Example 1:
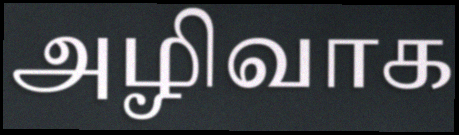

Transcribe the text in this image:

அழிவாக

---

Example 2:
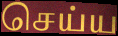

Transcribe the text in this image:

செய்ய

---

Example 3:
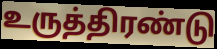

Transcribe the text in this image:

உருத்திரண்டு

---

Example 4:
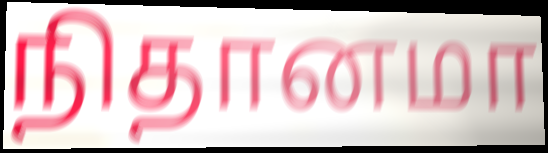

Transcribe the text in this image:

நிதானமா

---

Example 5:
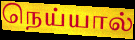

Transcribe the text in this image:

நெய்யால்